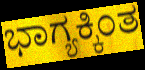
ಭಾಗ್ಯಕ್ಕಿಂತ